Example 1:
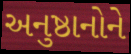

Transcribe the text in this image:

અનુષ્ઠાનોને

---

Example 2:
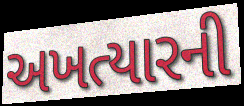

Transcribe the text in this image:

અખત્યારની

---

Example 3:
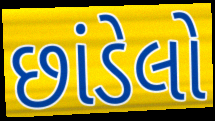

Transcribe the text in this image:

છાંડેલો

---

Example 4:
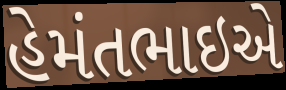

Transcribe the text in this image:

હેમંતભાઇએ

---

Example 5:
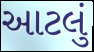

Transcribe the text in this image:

આટલું